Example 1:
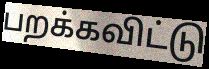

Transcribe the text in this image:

பறக்கவிட்டு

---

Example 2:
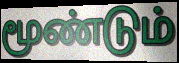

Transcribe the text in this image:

மூண்டும்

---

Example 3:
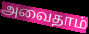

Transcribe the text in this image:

அவைதாம்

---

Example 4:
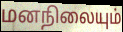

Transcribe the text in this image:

மனநிலையும்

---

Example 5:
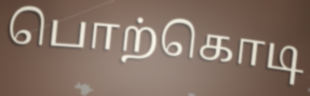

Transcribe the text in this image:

பொற்கொடி